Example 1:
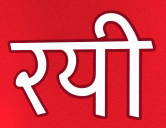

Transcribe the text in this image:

रयी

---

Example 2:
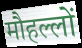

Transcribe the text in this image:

मौहल्लों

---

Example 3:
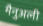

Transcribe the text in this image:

मैनुअली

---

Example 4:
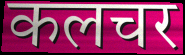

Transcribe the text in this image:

कलचर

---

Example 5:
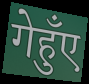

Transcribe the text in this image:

गेहुँए